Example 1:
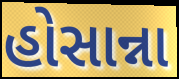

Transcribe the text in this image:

હોસાન્ના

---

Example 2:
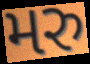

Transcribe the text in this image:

મરુ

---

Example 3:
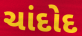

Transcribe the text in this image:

ચાંદોદ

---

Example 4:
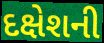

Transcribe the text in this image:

દક્ષેશની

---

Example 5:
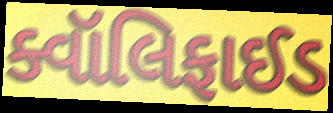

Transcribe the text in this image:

ક્વૉલિફાઈડ